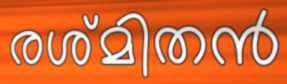
രശ്മിതൻ